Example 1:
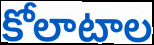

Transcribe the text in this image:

కోలాటాల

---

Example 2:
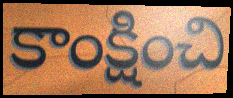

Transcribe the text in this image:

కాంక్షించి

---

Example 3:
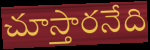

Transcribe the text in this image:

చూస్తారనేది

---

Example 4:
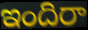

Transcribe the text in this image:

ఇందిరా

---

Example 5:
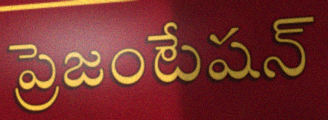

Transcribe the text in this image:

ప్రెజంటేషన్